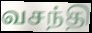
வசந்தி